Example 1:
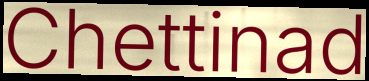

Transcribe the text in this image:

Chettinad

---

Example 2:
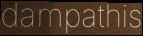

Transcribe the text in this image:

dampathis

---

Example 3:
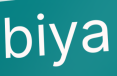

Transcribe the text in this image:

biya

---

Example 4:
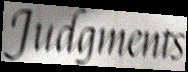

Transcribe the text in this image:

Judgments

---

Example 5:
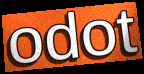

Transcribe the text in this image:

odot